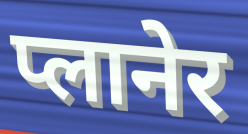
प्लानेर